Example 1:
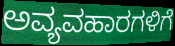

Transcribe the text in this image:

ಅವ್ಯವಹಾರಗಳಿಗೆ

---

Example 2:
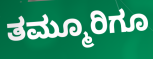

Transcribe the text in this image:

ತಮ್ಮೂರಿಗೂ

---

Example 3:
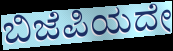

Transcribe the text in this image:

ಬಿಜೆಪಿಯದೇ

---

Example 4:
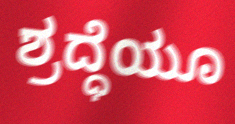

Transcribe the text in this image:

ಶ್ರದ್ಧೆಯೂ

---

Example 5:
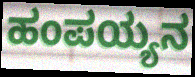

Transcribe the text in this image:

ಹಂಪಯ್ಯನ